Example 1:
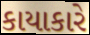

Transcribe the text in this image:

કાયાકારે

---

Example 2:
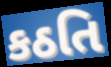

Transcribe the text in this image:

કઠતિ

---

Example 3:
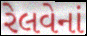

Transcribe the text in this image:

રેલવેનાં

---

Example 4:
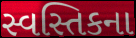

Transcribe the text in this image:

સ્વસ્તિકના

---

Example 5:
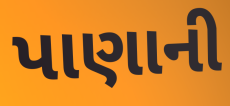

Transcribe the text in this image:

પાણાની